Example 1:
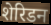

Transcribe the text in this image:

शेरिडन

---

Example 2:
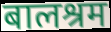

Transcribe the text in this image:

बालश्रम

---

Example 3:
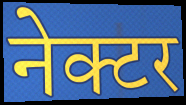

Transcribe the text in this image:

नेक्टर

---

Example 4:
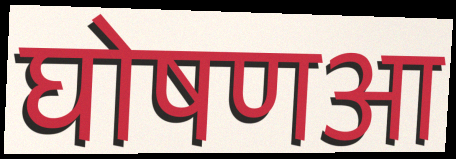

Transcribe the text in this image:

घोषणआ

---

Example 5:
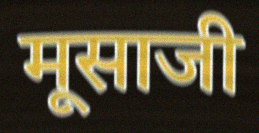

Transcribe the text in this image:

मूसाजी